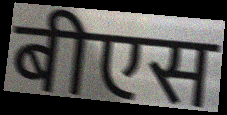
बीएस